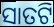
ସାତଟି